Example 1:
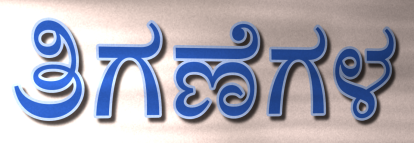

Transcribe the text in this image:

ತಿಗಣೆಗಳ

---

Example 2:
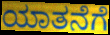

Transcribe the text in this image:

ಯಾತನೆಗೆ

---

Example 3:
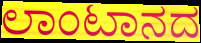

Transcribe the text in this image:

ಲಾಂಟಾನದ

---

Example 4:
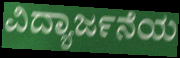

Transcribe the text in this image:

ವಿದ್ಯಾರ್ಜನೆಯ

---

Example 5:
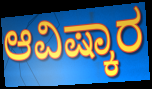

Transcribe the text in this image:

ಆವಿಷ್ಕಾರ